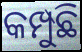
କମ୍ପୁଛି